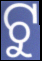
ଟୁ